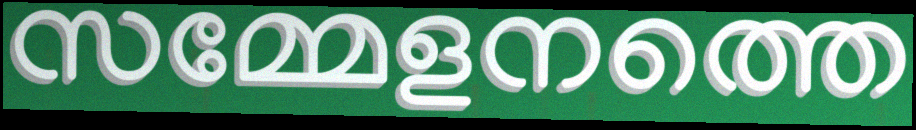
സമ്മേളനത്തെ